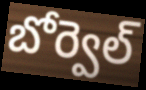
బోర్వెల్